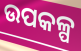
ଉପକଳ୍ପ